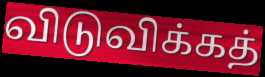
விடுவிக்கத்